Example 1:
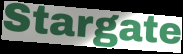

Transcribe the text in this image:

Stargate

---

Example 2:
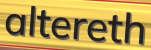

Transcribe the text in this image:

altereth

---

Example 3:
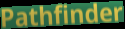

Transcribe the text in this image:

Pathfinder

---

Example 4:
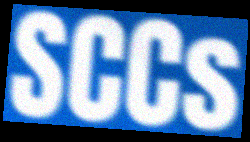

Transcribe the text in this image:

SCCs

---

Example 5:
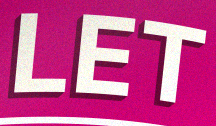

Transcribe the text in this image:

LET